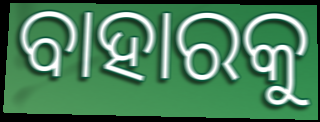
ବାହାରକୁ